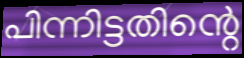
പിന്നിട്ടതിന്റെ